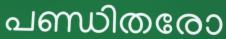
പണ്ഡിതരോ